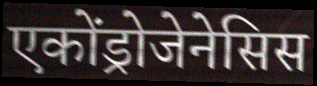
एकोंड्रोजेनेसिस